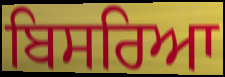
ਬਿਸਰਿਆ